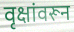
वृक्षांवरून